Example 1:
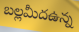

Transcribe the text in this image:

బల్లమీదఉన్న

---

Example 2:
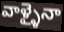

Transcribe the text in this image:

వాళ్ళైనా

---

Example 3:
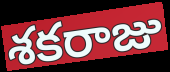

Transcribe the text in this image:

శకరాజు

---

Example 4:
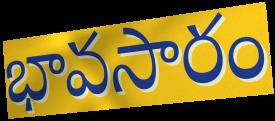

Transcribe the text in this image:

భావసారం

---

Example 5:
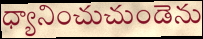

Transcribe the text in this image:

ధ్యానించుచుండెను